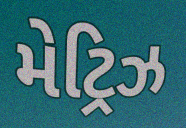
મેટ્રિઝ